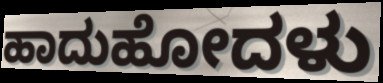
ಹಾದುಹೋದಳು